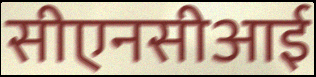
सीएनसीआई